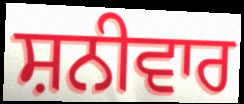
ਸ਼ਨੀਵਾਰ